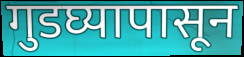
गुडघ्यापासून